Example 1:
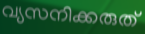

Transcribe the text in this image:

വ്യസനിക്കരുത്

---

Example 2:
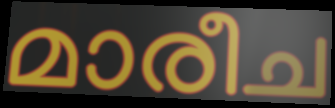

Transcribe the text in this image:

മാരീച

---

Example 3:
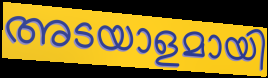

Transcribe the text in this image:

അടയാളമായി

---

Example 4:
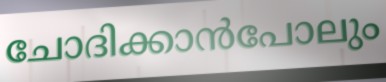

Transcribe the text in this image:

ചോദിക്കാൻപോലും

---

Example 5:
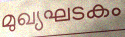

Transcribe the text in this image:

മുഖ്യഘടകം